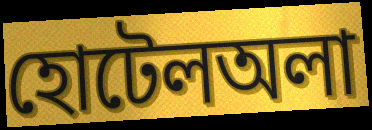
হোটেলঅলা